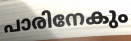
പാരിനേകും